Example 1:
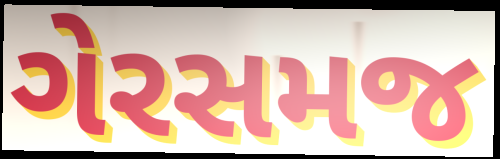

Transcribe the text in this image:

ગેરસમજ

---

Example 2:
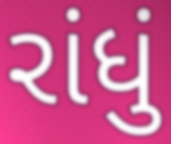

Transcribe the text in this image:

રાંધું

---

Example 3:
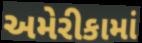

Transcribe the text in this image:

અમેરીકામાં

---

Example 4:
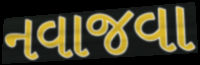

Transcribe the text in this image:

નવાજવા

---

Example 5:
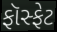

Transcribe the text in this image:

ફૉસ્ફેટ